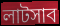
লাটসাব